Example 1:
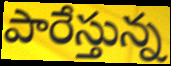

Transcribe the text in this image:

పారేస్తున్న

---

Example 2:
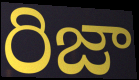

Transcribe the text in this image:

రిజా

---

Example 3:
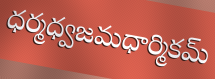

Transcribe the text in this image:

ధర్మధ్వజమధార్మికమ్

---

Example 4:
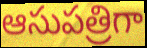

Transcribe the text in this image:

ఆసుపత్రిగా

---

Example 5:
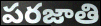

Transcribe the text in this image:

పరజాతి